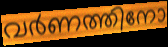
വർണത്തിനോ